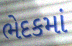
ભેદકમાં